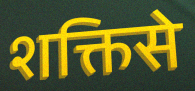
शक्तिसे